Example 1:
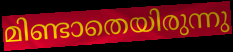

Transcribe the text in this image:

മിണ്ടാതെയിരുന്നു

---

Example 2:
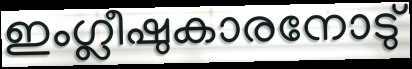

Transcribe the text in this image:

ഇംഗ്ലീഷുകാരനോടു്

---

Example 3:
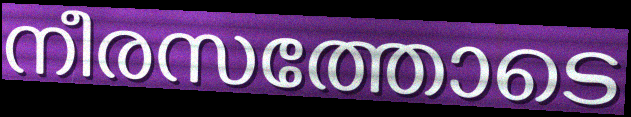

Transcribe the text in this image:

നീരസത്തോടെ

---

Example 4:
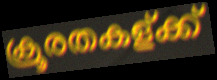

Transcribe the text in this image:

ക്രൂരതകള്ക്ക്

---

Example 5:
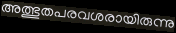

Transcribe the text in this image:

അത്ഭുതപരവശരായിരുന്നു